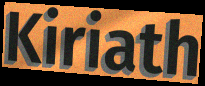
Kiriath